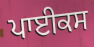
ਪਾਈਕਸ